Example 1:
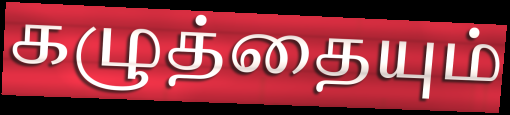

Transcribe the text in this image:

கழுத்தையும்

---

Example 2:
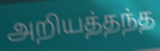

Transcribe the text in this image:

அறியத்தந்த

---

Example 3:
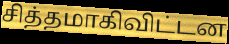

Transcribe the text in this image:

சித்தமாகிவிட்டன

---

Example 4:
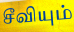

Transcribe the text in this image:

சீவியும்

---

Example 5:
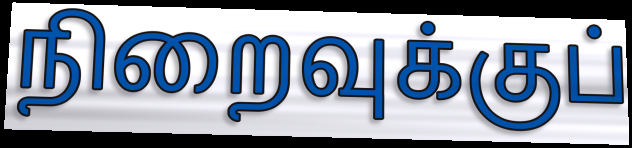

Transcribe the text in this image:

நிறைவுக்குப்